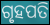
ଗୃହପତି